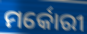
ମର୍କୋରୀ